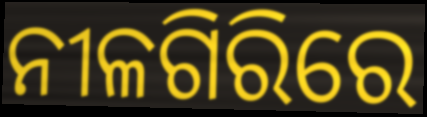
ନୀଳଗିରିରେ